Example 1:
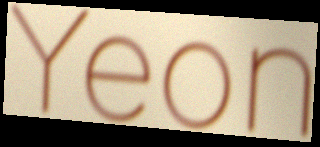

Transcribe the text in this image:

Yeon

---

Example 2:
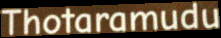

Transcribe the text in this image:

Thotaramudu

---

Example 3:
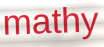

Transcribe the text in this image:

mathy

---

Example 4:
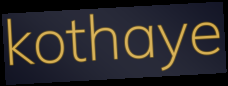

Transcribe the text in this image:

kothaye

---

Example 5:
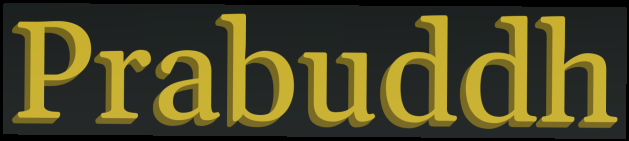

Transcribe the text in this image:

Prabuddh